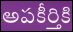
అపకీర్తికి